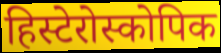
हिस्टेरोस्कोपिक